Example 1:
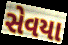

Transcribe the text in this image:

સેવયા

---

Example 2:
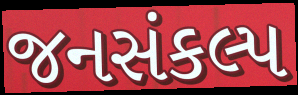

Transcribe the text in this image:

જનસંકલ્પ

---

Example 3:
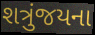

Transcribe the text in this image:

શત્રુંજયના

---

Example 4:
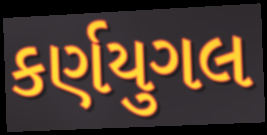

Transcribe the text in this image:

કર્ણયુગલ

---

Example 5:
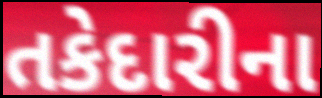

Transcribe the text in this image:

તકેદારીના